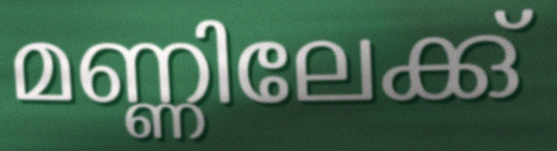
മണ്ണിലേക്കു്